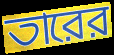
তারের